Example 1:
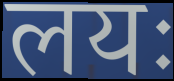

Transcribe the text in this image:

लयः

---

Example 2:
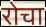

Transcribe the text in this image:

रोचा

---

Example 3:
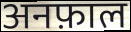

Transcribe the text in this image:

अनफ़ाल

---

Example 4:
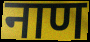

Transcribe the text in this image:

नाण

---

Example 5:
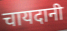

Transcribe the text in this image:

चायदानी